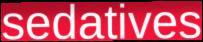
sedatives